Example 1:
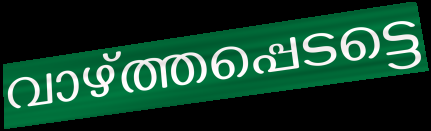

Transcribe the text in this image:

വാഴ്ത്തപ്പെടട്ടെ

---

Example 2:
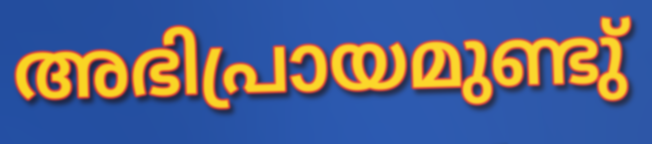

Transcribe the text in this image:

അഭിപ്രായമുണ്ടു്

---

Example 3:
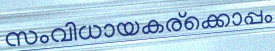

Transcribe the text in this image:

സംവിധായകര്ക്കൊപ്പം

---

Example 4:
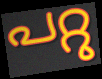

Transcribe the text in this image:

പറ്റു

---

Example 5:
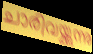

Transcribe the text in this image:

ചാരിവയ്ക്കുന്നു